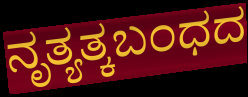
ನೃತ್ಯತ್ಕಬಂಧದ